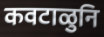
कवटाळुनि